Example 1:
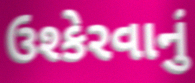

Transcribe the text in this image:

ઉશ્કેરવાનું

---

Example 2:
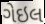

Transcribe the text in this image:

ગેઇલ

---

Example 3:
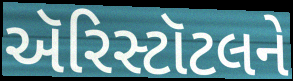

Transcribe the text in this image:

ઍરિસ્ટૉટલને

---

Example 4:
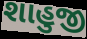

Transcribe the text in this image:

શાહુજી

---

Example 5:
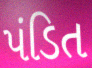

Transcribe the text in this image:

પંડિત